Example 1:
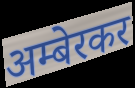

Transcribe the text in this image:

अम्बेरकर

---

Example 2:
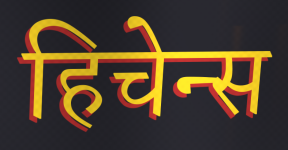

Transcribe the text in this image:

हिचेन्स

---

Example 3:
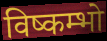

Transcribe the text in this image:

विष्कम्भो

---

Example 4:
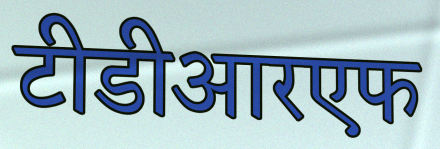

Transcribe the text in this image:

टीडीआरएफ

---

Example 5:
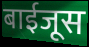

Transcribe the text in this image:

बाईजूस